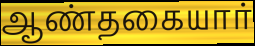
ஆண்தகையார்